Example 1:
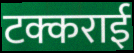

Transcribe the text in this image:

टक्कराई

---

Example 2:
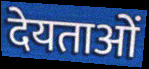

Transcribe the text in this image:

देयताओं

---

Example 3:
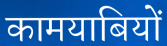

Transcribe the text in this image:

कामयाबियों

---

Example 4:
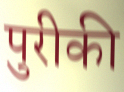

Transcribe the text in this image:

पुरीकी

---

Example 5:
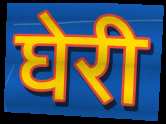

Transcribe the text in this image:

घेरी